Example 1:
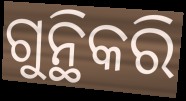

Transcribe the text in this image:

ଗୁନ୍ଥିକରି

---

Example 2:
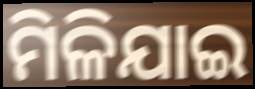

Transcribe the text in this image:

ମିଳିଯାଇ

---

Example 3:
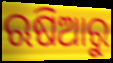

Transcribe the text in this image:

ଋଷିଆରୁ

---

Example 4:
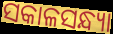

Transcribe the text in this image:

ସକାଳସନ୍ଧ୍ୟା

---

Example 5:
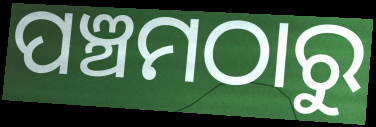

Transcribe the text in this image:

ପଞ୍ଚମଠାରୁ